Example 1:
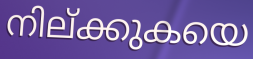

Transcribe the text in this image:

നില്ക്കുകയെ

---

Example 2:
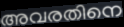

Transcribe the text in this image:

അവരതിനെ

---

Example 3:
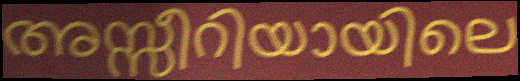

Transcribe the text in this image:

അസ്സീറിയായിലെ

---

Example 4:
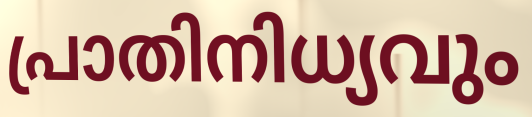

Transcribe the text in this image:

പ്രാതിനിധ്യവും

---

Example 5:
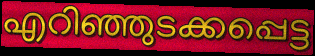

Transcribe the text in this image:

എറിഞ്ഞുടക്കപ്പെട്ട